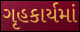
ગૃહકાર્યમાં